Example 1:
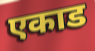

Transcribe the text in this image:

एकाड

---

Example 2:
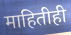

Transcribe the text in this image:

माहितीही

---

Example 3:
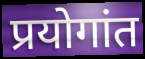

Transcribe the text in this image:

प्रयोगांत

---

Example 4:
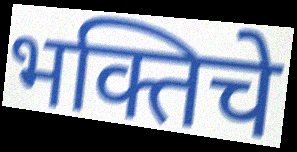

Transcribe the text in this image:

भक्तिचे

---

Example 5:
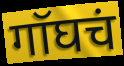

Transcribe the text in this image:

गॉघचं